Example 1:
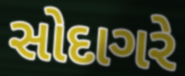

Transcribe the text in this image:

સોદાગરે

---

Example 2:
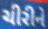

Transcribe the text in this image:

ચીરીને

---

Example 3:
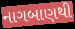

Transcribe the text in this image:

નાગબાણથી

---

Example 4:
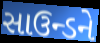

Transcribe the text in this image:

સાઉન્ડને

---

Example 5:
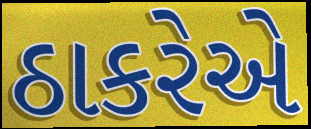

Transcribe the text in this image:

ઠાકરેએ